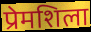
प्रेमशिला